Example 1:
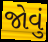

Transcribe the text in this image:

જોવું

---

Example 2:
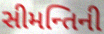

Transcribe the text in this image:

સીમન્તિની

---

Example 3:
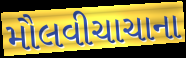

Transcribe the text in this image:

મૌલવીચાચાના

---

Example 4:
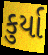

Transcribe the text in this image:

કુર્યા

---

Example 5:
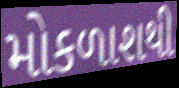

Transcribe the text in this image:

મોકળાશથી